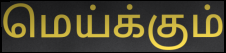
மெய்க்கும்